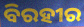
ବିରହୀର